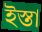
ইস্তা